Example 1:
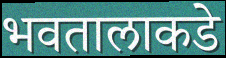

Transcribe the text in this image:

भवतालाकडे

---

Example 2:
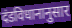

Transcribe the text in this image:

दंडविधानानुसार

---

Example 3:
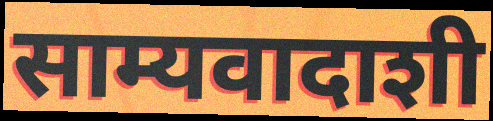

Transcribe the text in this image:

साम्यवादाशी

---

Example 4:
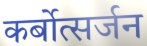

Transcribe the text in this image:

कर्बोत्सर्जन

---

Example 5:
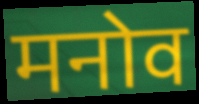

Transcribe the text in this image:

मनोव